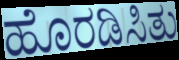
ಹೊರಡಿಸಿತು